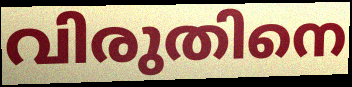
വിരുതിനെ